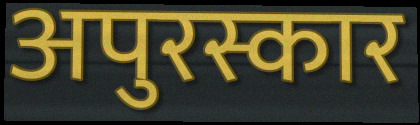
अपुरस्कार